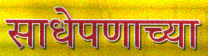
साधेपणाच्या